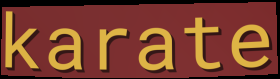
karate